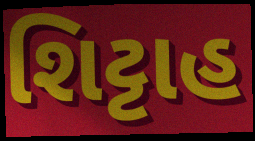
શિટ્ટાહ